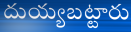
దుయ్యబట్టారు